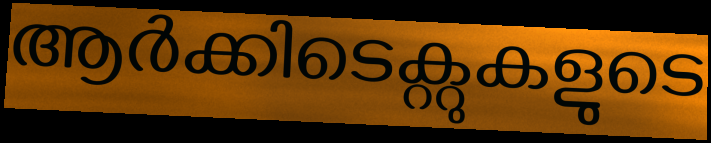
ആർക്കിടെക്റ്റുകളുടെ